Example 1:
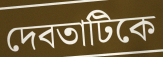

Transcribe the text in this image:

দেবতাটিকে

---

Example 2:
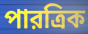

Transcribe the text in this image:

পারত্রিক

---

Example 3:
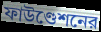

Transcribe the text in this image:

ফাউণ্ডেশনের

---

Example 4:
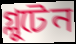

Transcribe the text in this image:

গ্লুটেন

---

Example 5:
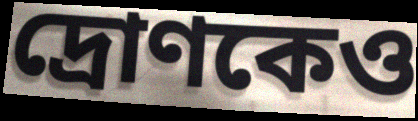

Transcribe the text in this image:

দ্রোণকেও